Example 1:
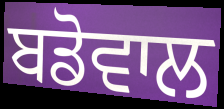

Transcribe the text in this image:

ਬਡੋਵਾਲ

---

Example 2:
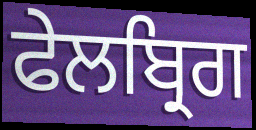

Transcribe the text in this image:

ਫੇਲਬ੍ਰਿਗ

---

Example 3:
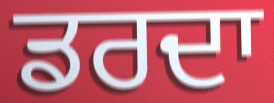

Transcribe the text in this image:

ਡਰਦਾ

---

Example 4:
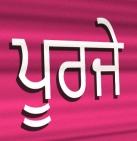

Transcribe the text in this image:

ਪੂਰਜੇ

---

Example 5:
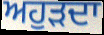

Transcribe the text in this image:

ਅਹੁੜਦਾ